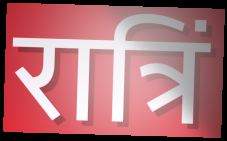
रात्रिं